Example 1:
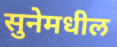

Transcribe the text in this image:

सुनेमधील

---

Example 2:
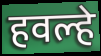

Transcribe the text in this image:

हवल्हे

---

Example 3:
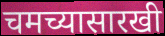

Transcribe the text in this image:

चमच्यासारखी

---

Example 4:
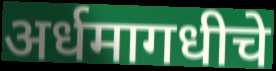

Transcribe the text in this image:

अर्धमागधीचे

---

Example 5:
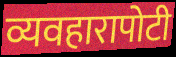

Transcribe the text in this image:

व्यवहारापोटी